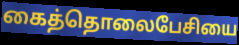
கைத்தொலைபேசியை